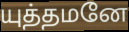
யுத்தமனே